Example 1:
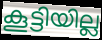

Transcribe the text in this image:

കൂട്ടിയില്ല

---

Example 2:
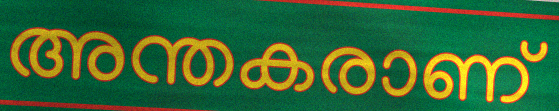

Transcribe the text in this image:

അന്തകരാണ്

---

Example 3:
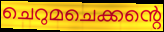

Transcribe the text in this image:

ചെറുമചെക്കന്റെ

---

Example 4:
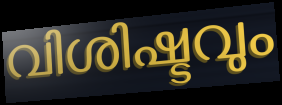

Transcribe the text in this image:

വിശിഷ്ടവും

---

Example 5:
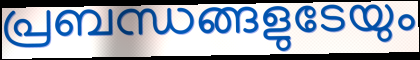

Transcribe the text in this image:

പ്രബന്ധങ്ങളുടേയും